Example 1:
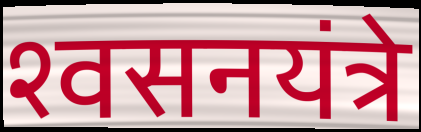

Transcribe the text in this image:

श्वसनयंत्रे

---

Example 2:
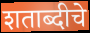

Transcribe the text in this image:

शताब्दीचे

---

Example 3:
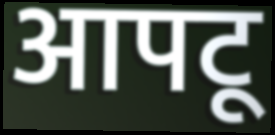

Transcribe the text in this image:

आपटू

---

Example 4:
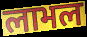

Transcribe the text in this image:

लाभल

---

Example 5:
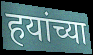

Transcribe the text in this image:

हयांच्या